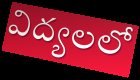
విద్యలలో